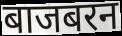
बाजबरन